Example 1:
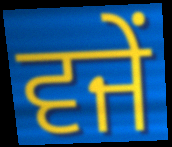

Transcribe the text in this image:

ਵਜੇਂ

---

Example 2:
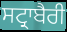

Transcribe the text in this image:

ਸਟ੍ਰਾਬੈਰੀ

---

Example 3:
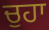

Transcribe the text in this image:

ਚੁਹਾ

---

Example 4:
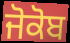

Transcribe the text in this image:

ਜੋਕੋਬ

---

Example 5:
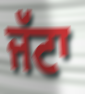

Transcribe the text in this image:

ਜੱਟਾ